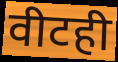
वीटही